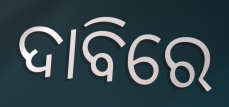
ଦାବିରେ